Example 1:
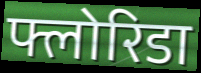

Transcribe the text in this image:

फ्लोरिडा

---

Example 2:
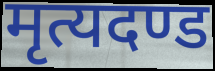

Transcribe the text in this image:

मृत्यदण्ड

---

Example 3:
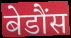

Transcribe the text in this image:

बेडौंस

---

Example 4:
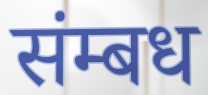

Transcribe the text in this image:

संम्बध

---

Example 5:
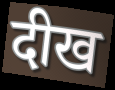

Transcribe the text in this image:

दीख